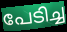
പേടിച്ച